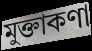
মুক্তাকণা